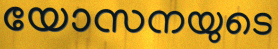
യോസനയുടെ